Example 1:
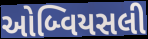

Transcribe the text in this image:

ઓબ્વિયસલી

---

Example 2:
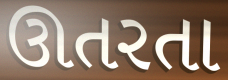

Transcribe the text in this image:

ઊતરતા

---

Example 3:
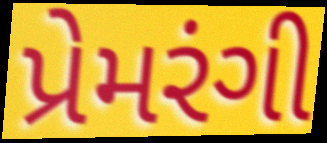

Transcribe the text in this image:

પ્રેમરંગી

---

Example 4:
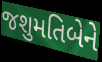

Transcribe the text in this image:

જશુમતિબેને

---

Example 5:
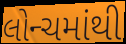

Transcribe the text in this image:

લોન્ચમાંથી